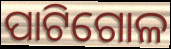
ପାଟିଗୋଳ